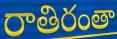
రాతిరంతా